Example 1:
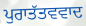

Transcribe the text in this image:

ਪੁਰਾਤੱਤਵਵਾਦ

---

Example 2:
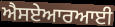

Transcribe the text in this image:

ਐਸਏਆਰਆਈ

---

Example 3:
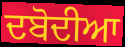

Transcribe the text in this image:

ਦਬੋਦੀਆ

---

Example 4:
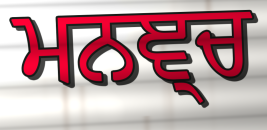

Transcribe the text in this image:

ਮਨਞ੍ਚ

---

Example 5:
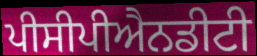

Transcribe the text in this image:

ਪੀਸੀਪੀਐਨਡੀਟੀ